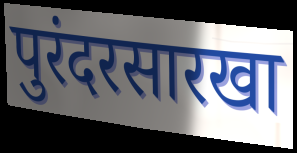
पुरंदरसारखा